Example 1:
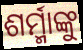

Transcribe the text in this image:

ଶର୍ମ୍ମାଙ୍କୁ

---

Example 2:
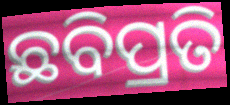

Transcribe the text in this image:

ଛବିପ୍ରତି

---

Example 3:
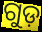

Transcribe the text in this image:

ଗୁଡ଼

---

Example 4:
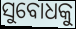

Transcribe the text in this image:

ସୁବୋଧକୁ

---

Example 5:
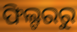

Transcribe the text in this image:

ଫିଲ୍ଟରରୁ